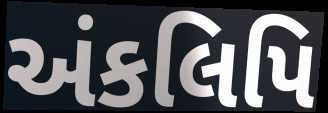
અંકલિપિ